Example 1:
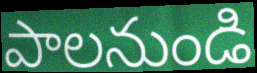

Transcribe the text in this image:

పాలనుండి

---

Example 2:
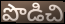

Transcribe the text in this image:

పొడిచి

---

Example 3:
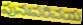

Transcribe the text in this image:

పునఃపరిచయ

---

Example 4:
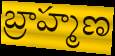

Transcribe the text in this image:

బ్రాహ్మణ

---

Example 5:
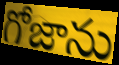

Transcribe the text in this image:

గోజాను